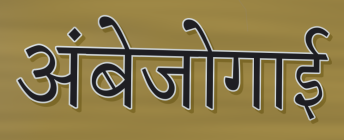
अंबेजोगाई